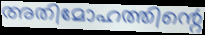
അതിമോഹത്തിന്റെ